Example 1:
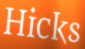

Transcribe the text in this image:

Hicks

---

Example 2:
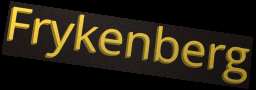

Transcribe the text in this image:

Frykenberg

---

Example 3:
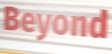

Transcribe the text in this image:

Beyond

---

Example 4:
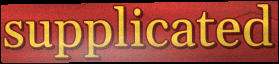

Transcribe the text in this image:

supplicated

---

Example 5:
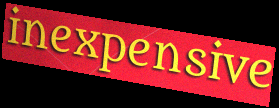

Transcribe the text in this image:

inexpensive